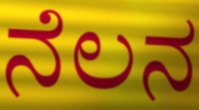
ನೆಲನ